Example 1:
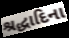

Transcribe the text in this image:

શ્રદ્ધાદિના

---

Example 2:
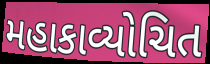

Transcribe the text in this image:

મહાકાવ્યોચિત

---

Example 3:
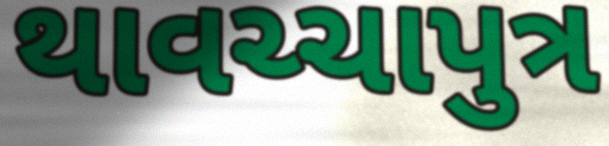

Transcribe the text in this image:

થાવચ્ચાપુત્ર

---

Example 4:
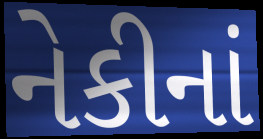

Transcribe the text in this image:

નેકીનાં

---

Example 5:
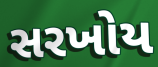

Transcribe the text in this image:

સરખોય